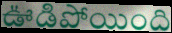
ఊడిపోయింది